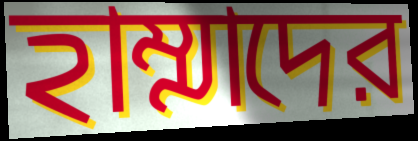
হাম্মাদের